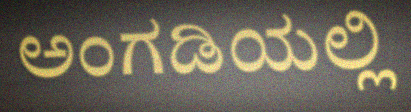
ಅಂಗಡಿಯಲ್ಲಿ